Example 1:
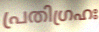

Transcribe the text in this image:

പ്രതിഗ്രഹഃ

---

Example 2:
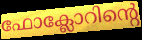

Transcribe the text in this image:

ഫോക്ലോറിന്റെ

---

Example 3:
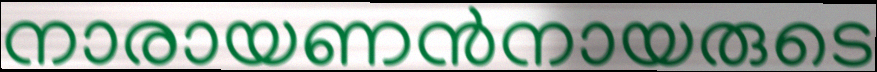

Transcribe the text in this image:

നാരായണൻനായരുടെ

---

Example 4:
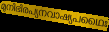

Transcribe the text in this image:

മുനിഭിരപ്യനവാഷ്യപഥൈഃ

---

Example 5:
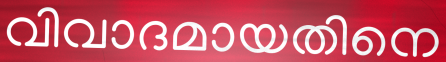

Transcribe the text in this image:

വിവാദമായതിനെ